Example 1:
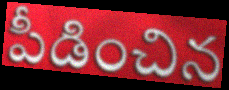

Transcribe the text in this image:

పీడించిన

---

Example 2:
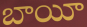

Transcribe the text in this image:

బాయీ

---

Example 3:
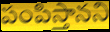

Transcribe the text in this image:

పంపిస్తానని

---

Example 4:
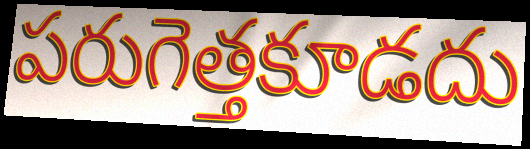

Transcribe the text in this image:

పరుగెత్తకూడదు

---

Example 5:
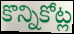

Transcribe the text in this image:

కొన్నికోట్ల